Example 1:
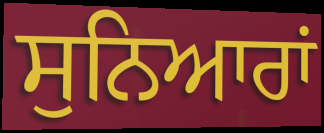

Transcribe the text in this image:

ਸੁਨਿਆਰਾਂ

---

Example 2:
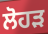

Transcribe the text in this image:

ਲੋਹੜ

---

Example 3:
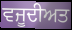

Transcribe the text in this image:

ਵਜੂਦੀਅਤ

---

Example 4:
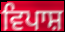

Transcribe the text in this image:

ਵਿਪਾਸ਼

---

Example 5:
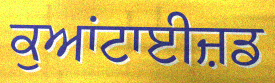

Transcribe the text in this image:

ਕੁਆਂਟਾਈਜ਼ਡ